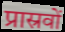
प्रास्रवों